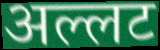
अल्लट